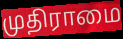
முதிராமை